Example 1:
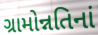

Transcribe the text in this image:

ગ્રામોન્નતિનાં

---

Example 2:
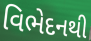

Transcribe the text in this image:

વિભેદનથી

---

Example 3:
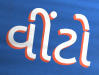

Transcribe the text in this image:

વીંટો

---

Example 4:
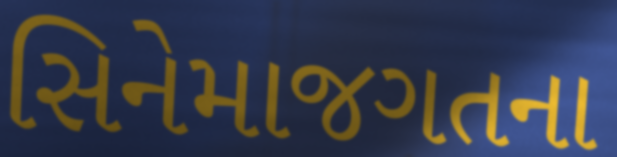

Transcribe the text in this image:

સિનેમાજગતના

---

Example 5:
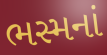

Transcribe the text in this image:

ભસ્મનાં